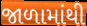
જાળામાંથી